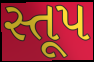
સ્તૂપ